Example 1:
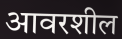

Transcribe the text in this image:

आवरशील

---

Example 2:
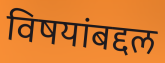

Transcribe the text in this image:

विषयांबद्दल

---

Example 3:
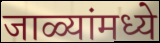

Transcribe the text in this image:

जाळ्यांमध्ये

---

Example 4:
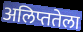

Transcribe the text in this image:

अलिप्ततेला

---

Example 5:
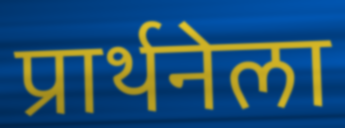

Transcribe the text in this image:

प्रार्थनेला